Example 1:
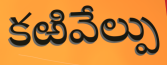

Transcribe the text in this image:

కఱివేల్పు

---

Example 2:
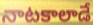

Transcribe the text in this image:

నాటకాలాడే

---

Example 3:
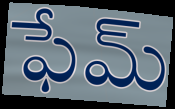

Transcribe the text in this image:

ఫేమ్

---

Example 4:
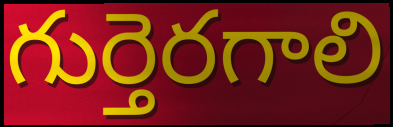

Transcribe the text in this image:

గుర్తెరగాలి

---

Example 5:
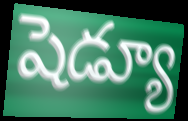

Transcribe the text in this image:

షెడ్యూ